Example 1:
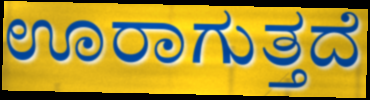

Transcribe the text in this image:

ಊರಾಗುತ್ತದೆ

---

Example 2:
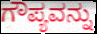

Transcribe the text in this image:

ಗೌಪ್ಯವನ್ನು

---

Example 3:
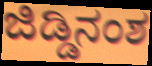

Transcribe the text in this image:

ಜಿಡ್ಡಿನಂಶ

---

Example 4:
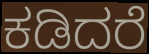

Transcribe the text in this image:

ಕಡಿದರೆ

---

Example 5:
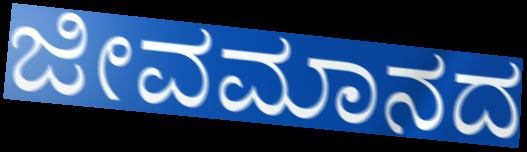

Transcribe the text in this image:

ಜೀವಮಾನದ